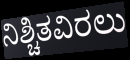
ನಿಶ್ಚಿತವಿರಲು